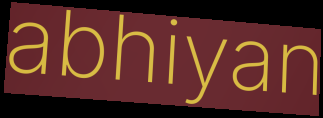
abhiyan